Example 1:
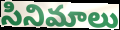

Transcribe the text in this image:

సినిమాలు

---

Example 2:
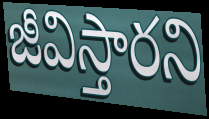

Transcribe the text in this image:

జీవిస్తారని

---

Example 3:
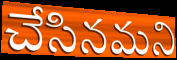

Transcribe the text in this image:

చేసినమని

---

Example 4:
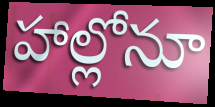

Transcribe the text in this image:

హాల్లోనూ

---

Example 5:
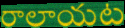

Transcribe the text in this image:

రాలాయట